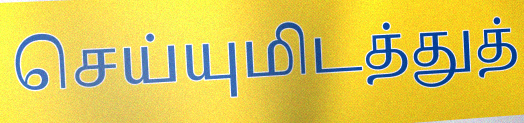
செய்யுமிடத்துத்